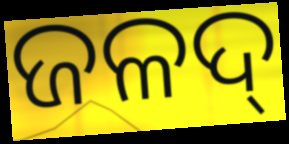
ଜଳଦ୍